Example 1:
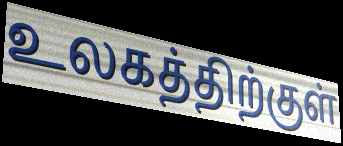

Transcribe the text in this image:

உலகத்திற்குள்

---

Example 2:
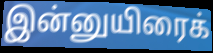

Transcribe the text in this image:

இன்னுயிரைக்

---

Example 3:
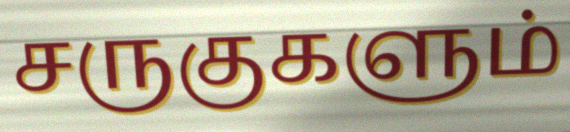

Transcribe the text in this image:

சருகுகளும்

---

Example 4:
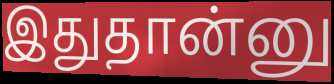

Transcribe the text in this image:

இதுதான்னு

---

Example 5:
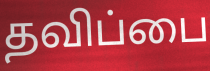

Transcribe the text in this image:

தவிப்பை